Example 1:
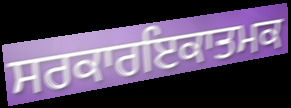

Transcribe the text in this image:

ਸਰਕਾਰਇਕਾਤਮਕ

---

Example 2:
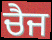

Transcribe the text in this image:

ਚੈਜ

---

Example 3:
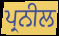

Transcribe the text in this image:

ਪ੍ਰਨੀਲ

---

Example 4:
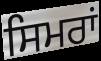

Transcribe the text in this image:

ਸਿਮਰਾਂ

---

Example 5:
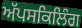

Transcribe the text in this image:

ਅੱਪਸਕਿਲਿੰਗ